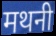
मथनी